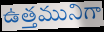
ఉత్తమునిగా